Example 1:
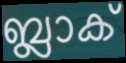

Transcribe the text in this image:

ബ്ലാക്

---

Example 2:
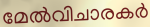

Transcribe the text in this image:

മേൽവിചാരകർ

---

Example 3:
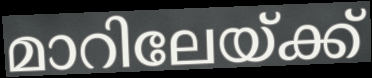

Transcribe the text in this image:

മാറിലേയ്ക്ക്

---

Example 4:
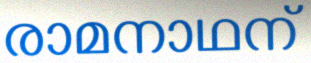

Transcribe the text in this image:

രാമനാഥന്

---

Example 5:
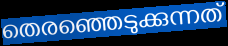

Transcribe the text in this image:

തെരഞ്ഞെടുക്കുന്നത്